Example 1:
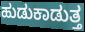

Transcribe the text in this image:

ಹುಡುಕಾಡುತ್ತ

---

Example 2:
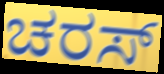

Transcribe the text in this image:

ಚರಸ್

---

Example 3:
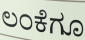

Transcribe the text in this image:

ಲಂಕೆಗೂ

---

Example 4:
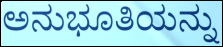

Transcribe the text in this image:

ಅನುಭೂತಿಯನ್ನು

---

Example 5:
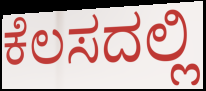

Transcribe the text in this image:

ಕೆಲಸದಲ್ಲಿ